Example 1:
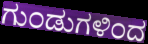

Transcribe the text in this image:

ಗುಂಡುಗಳಿಂದ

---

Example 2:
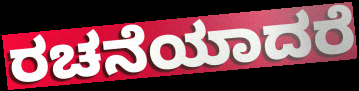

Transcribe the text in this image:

ರಚನೆಯಾದರೆ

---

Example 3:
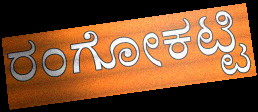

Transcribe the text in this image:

ರಂಗೋಕಟ್ಟಿ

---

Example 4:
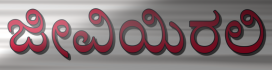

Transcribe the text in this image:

ಜೀವಿಯಿರಲಿ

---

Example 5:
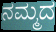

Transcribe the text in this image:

ನಮ್ಮದ